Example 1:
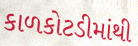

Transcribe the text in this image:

કાળકોટડીમાંથી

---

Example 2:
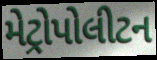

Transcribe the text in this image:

મેટ્રોપોલીટન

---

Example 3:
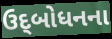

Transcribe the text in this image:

ઉદ્‌બોધનના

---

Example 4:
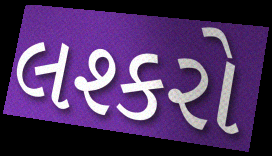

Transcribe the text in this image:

લશ્કરો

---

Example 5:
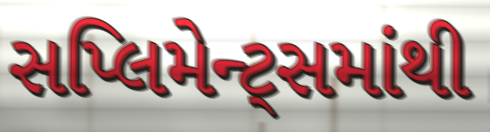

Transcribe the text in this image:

સપ્લિમેન્ટ્સમાંથી